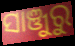
ସାଞ୍ଜୁରୁ